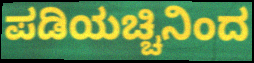
ಪಡಿಯಚ್ಚಿನಿಂದ